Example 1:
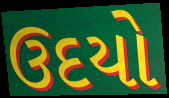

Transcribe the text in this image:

ઉદયો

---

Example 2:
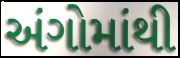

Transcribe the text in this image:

અંગોમાંથી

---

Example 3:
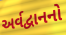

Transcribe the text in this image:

અર્વદ્વાનનો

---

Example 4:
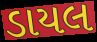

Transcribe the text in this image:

ડાયલ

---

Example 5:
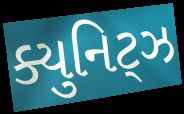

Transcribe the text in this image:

ક્યુનિટ્ઝ